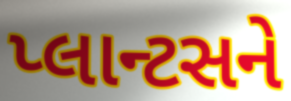
પ્લાન્ટસને